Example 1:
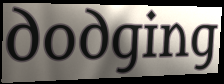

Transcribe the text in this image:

dodging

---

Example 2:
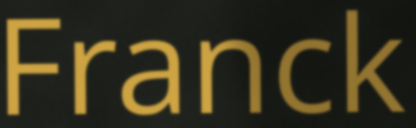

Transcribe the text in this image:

Franck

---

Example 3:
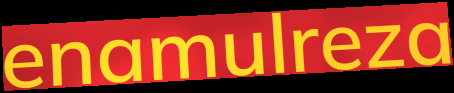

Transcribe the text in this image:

enamulreza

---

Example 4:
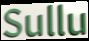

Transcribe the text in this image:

Sullu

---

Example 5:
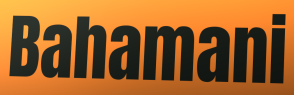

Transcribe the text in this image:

Bahamani